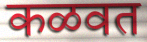
कळवत